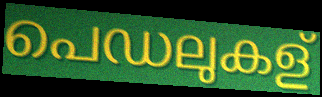
പെഡലുകള്